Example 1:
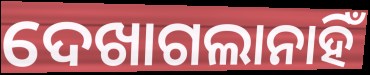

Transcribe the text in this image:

ଦେଖାଗଲାନାହିଁ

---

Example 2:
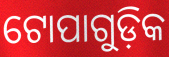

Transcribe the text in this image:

ଟୋପାଗୁଡ଼ିକ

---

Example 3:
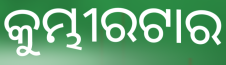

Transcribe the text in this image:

କୁମ୍ଭୀରଟାର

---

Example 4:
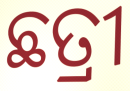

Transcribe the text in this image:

ଛତ୍ରୀ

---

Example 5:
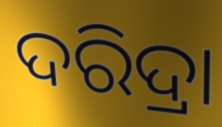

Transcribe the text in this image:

ଦରିଦ୍ରା